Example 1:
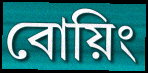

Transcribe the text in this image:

বোয়িং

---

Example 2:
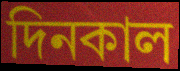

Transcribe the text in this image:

দিনকাল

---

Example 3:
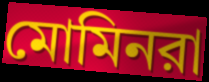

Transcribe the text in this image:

মোমিনরা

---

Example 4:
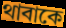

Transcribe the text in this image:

থাবাকে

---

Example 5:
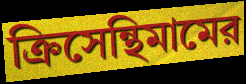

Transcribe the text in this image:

ক্রিসেন্থিমামের